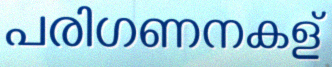
പരിഗണനകള്